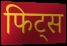
फिट्स